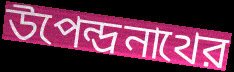
উপেন্দ্রনাথের